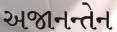
અજાનન્તેન